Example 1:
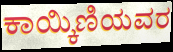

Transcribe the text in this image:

ಕಾಯ್ಕಿಣಿಯವರ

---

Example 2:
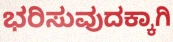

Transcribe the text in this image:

ಭರಿಸುವುದಕ್ಕಾಗಿ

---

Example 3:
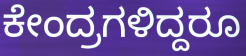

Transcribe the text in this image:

ಕೇಂದ್ರಗಳಿದ್ದರೂ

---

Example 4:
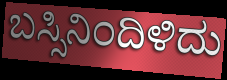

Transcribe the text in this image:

ಬಸ್ಸಿನಿಂದಿಳಿದು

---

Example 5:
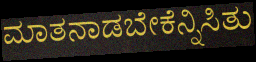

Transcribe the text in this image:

ಮಾತನಾಡಬೇಕೆನ್ನಿಸಿತು